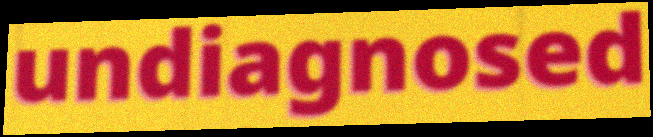
undiagnosed